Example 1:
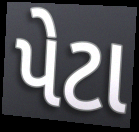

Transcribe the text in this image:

પેટા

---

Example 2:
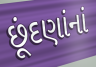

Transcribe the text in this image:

છૂંદણાંનાં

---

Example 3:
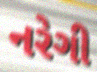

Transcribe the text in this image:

નરેગી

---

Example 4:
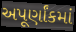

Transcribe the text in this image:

અપૂર્ણાંકમાં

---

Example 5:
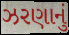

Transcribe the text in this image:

ઝરણાનું